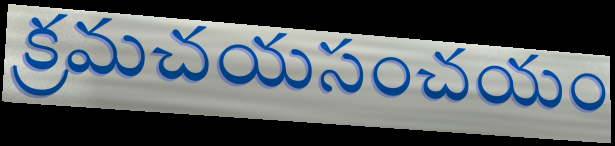
క్రమచయసంచయం